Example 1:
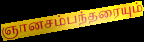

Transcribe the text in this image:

ஞானசம்பந்தரையும்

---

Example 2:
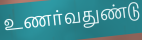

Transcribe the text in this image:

உணர்வதுண்டு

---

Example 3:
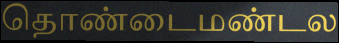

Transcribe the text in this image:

தொண்டைமண்டல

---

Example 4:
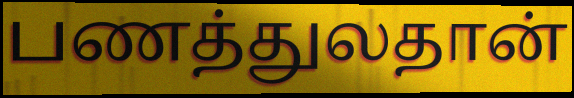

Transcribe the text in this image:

பணத்துலதான்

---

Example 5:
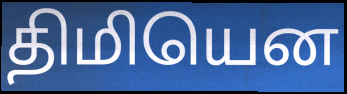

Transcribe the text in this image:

திமியென